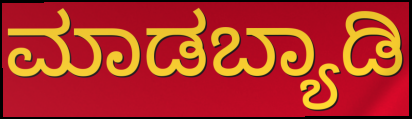
ಮಾಡಬ್ಯಾಡಿ